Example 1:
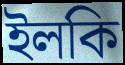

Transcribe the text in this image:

ইলকি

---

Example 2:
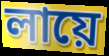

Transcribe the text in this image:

লায়ে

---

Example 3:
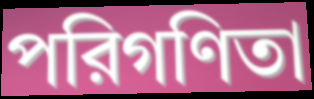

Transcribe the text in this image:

পরিগণিতা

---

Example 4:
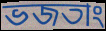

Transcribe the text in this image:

ভজতাং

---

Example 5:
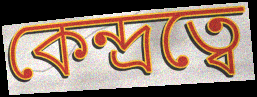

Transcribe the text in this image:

কেন্দ্রত্বে